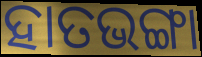
ହାତଭଙ୍ଗା